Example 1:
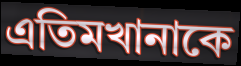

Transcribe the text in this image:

এতিমখানাকে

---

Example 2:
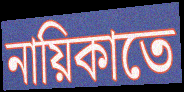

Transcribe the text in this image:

নায়িকাতে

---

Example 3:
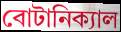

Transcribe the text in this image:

বোটানিক্যাল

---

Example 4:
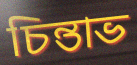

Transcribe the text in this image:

চিন্তাভ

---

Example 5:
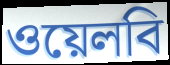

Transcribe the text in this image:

ওয়েলবি